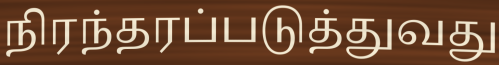
நிரந்தரப்படுத்துவது